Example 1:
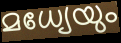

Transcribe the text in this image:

മധ്യേയും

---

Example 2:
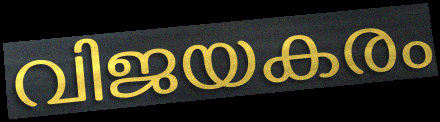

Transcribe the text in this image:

വിജയകരം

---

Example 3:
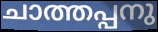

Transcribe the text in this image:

ചാത്തപ്പനു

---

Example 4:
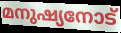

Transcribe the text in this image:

മനുഷ്യനോട്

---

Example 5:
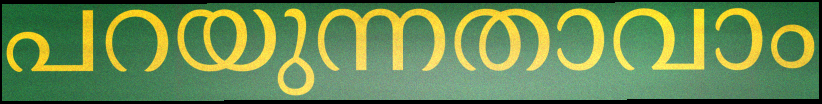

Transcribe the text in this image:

പറയുന്നതാവാം